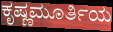
ಕೃಷ್ಣಮೂರ್ತಿಯ